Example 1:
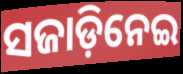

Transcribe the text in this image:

ସଜାଡ଼ିନେଇ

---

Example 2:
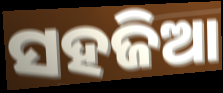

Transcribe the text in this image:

ସହଜିଆ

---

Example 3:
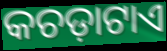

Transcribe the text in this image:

କଚଡ଼ାଟାଏ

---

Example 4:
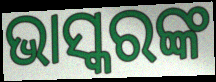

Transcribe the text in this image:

ଭାସ୍କରଙ୍କ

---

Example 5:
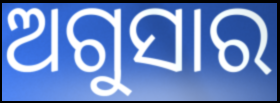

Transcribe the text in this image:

ଅଗୁସାର